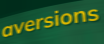
aversions